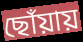
ছোঁয়ায়